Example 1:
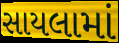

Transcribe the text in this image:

સાયલામાં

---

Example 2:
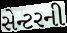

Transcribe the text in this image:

સેન્ટરની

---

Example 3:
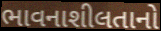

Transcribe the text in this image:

ભાવનાશીલતાનો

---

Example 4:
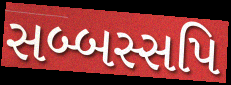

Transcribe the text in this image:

સબ્બસ્સપિ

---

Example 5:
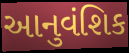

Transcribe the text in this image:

આનુવંશિક